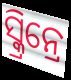
ସ୍କ୍ରିନ୍ରେ